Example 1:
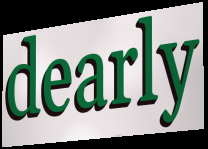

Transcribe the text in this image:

dearly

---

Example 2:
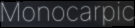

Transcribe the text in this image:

Monocarpic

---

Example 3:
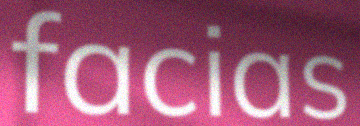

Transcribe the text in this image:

facias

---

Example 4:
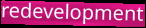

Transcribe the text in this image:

redevelopment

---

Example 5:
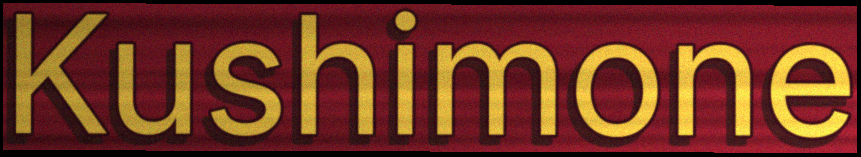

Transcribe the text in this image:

Kushimone